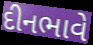
દીનભાવે